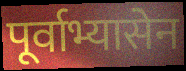
पूर्वाभ्यासेन